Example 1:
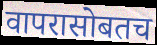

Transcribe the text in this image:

वापरासोबतच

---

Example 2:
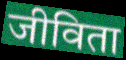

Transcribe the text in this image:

जीविता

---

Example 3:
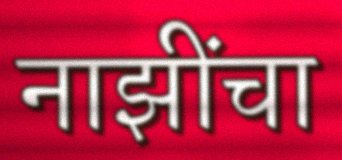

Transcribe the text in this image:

नाझींचा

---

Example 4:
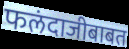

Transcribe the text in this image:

फलंदाजीबाबत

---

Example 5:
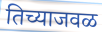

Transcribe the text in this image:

तिच्याजवळ